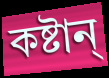
কষ্টান্